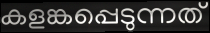
കളങ്കപ്പെടുന്നത്